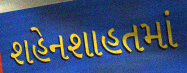
શહેનશાહતમાં